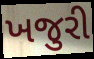
ખજુરી